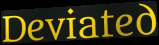
Deviated